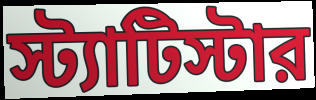
স্ট্যাটিস্টার